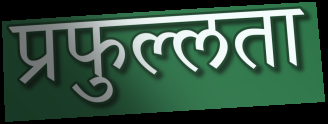
प्रफुल्लता